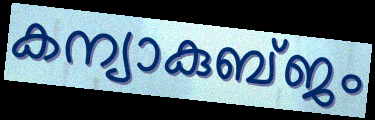
കന്യാകുബ്ജം